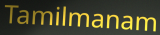
Tamilmanam